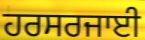
ਹਰਸਰਜਾਈ